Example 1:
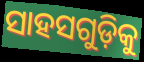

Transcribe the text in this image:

ସାହସଗୁଡ଼ିକୁ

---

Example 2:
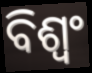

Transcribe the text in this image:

ବିଶ୍ୱଂ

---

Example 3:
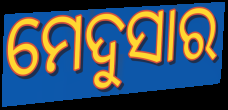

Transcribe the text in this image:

ମେଦୁସାର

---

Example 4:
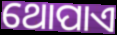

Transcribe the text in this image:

ଥୋପାଏ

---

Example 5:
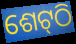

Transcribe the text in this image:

ଶେଟ୍‍ଠି